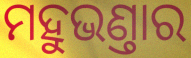
ମହୁଭଣ୍ତାର